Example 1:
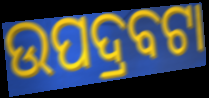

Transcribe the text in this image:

ଉପଦ୍ରବଟା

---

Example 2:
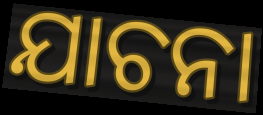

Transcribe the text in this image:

ଯାଚନା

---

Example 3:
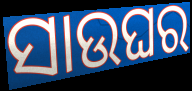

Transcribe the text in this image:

ସାଉଘର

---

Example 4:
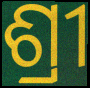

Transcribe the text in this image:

ଶ୍ରୀ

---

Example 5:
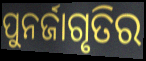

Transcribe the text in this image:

ପୁନର୍ଜାଗୃତିର